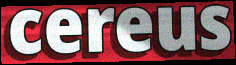
cereus